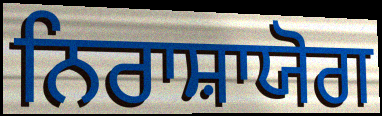
ਨਿਰਾਸ਼ਾਯੋਗ